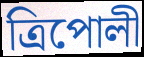
ত্রিপোলী